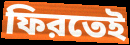
ফিরতেই